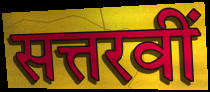
सत्तरवीं